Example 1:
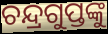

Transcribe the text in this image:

ଚନ୍ଦ୍ରଗୁପ୍ତଙ୍କୁ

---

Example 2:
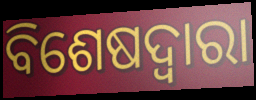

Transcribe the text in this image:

ବିଶେଷଦ୍ଵାରା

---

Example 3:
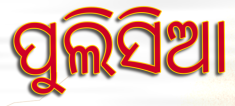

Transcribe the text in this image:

ପୁଲିସିଆ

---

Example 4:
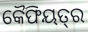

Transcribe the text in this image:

କୈଫିୟତ୍‌ର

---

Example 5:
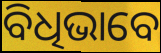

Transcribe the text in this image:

ବିଧିଭାବେ